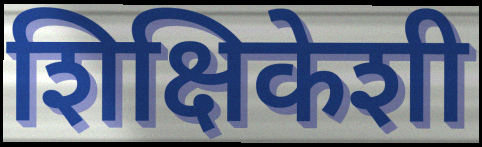
शिक्षिकेशी